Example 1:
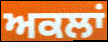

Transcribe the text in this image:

ਅਕਲਾਂ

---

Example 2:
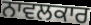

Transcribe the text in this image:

ਨਾਵਲਕਾਰ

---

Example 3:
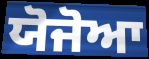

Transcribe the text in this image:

ਯੋਜੋਆ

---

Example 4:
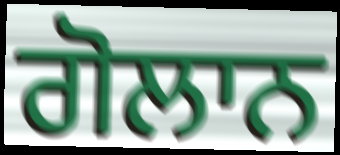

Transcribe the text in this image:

ਗੋਲਾਨ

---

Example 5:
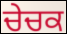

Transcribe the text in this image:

ਚੇਚਕ